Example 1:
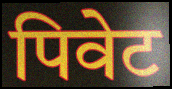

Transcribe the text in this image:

पिवेट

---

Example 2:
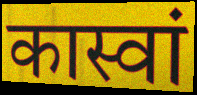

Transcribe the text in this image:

कास्वां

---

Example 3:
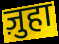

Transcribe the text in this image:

ज़ुहा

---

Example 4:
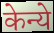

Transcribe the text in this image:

केन्ये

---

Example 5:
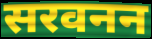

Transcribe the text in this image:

सरवनन